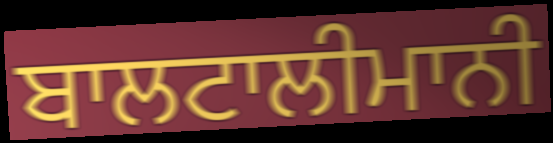
ਬਾਲਟਾਲੀਮਾਨੀ